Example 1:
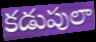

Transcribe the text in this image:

కడుపులా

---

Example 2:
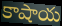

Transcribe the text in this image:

కాషాయ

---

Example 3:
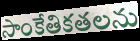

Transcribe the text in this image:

సాంకేతికతలను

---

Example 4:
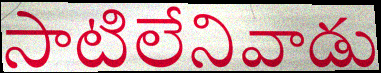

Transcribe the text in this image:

సాటిలేనివాడు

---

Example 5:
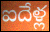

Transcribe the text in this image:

ఐదేళ్ల